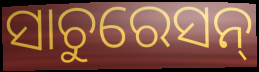
ସାଚୁରେସନ୍